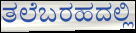
ತಲೆಬರಹದಲ್ಲಿ